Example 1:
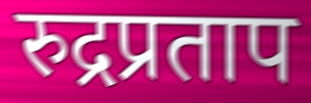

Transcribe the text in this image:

रुद्रप्रताप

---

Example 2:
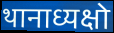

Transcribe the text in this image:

थानाध्यक्षो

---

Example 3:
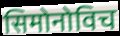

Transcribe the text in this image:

सिमोनोविच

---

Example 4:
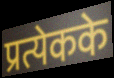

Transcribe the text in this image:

प्रत्येकके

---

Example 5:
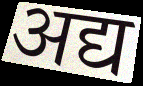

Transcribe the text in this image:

अद्य